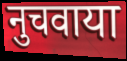
नुचवाया